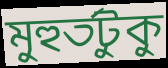
মুহুর্তটুকু